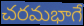
చరమభాగే